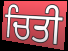
ਚਿਤੀ